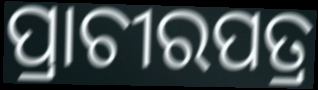
ପ୍ରାଚୀରପତ୍ର